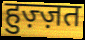
हुज़्ज़त